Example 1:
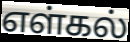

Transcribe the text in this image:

எள்கல்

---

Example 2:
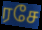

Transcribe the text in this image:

ரசே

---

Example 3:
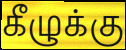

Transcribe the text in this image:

கீழுக்கு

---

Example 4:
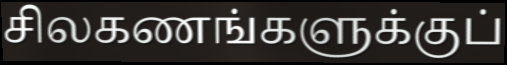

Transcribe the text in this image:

சிலகணங்களுக்குப்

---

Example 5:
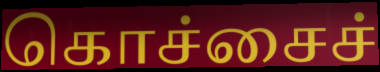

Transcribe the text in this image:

கொச்சைச்